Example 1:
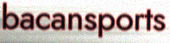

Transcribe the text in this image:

bacansports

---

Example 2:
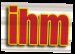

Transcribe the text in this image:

ihm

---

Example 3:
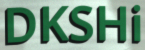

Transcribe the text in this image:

DKSHi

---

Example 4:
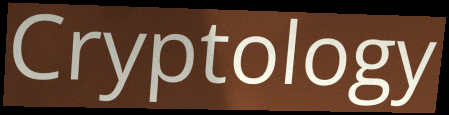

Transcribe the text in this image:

Cryptology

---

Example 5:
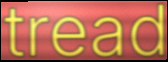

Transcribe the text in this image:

tread